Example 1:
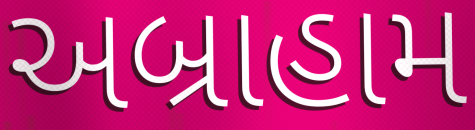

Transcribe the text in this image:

અબ્રાહામ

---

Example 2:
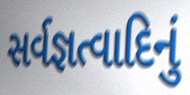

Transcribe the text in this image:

સર્વજ્ઞત્વાદિનું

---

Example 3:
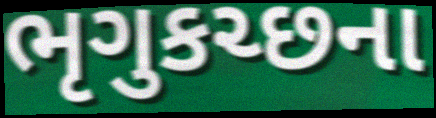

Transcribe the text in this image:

ભૃગુકચ્છના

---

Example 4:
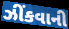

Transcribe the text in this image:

ઝીંકવાની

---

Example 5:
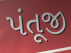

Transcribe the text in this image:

પંતૂજી